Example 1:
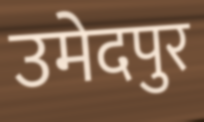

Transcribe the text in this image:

उमेदपुर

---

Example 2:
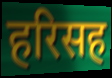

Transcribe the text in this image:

हरिसह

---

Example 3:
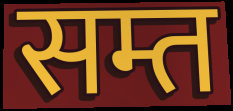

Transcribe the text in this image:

सम्त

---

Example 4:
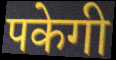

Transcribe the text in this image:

पकेगी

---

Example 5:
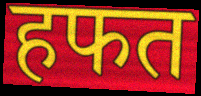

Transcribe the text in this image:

हफत